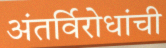
अंतर्विरोधांची